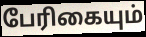
பேரிகையும்